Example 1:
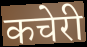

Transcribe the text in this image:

कचेरी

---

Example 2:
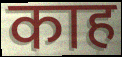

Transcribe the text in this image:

काह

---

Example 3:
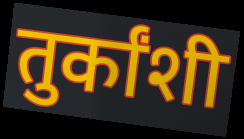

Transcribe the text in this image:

तुर्कांशी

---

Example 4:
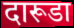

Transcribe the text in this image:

दारूडा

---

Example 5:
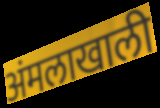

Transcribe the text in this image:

अंमलाखाली